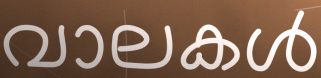
വാലകൾ